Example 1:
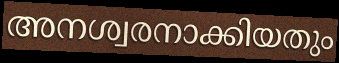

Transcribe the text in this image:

അനശ്വരനാക്കിയതും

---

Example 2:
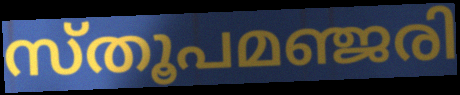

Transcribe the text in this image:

സ്തൂപമഞ്ജരി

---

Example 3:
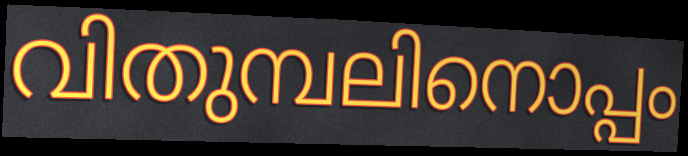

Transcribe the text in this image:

വിതുമ്പലിനൊപ്പം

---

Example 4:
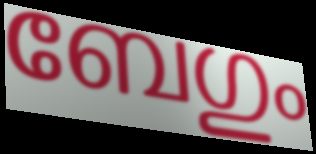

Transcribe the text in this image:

ബേഗും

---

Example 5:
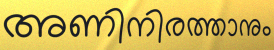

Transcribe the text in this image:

അണിനിരത്താനും